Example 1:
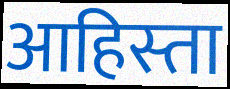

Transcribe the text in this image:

आहिस्‍ता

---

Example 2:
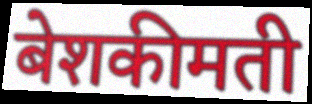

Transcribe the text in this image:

बेशकीमती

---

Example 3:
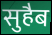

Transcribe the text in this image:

सुहैब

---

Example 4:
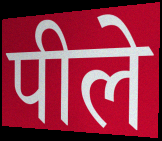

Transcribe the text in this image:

पीले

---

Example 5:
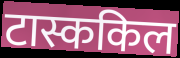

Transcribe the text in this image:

टास्ककिल